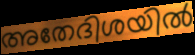
അതേദിശയിൽ